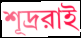
শূদ্ররাই